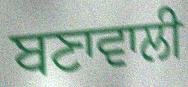
ਬਣਾਵਾਲੀ